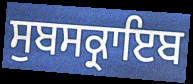
ਸੁਬਸਕ੍ਰਾਇਬ